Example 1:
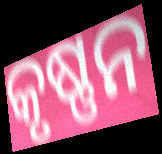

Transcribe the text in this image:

କୃଷ୍ଣନ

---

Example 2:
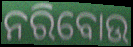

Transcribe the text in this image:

ନରିବୋଉ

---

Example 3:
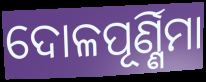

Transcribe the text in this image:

ଦୋଳପୂର୍ଣ୍ଣିମା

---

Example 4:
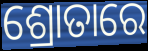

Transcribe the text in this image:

ଶ୍ରୋତାରେ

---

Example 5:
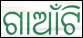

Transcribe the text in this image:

ଗାଆଁଟି